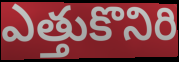
ఎత్తుకొనిరి